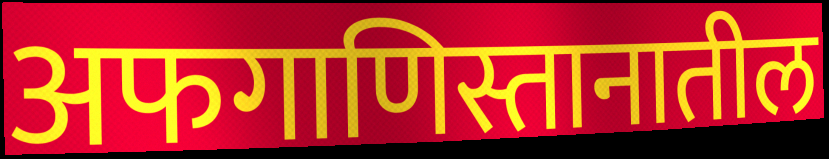
अफगाणिस्तानातील